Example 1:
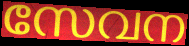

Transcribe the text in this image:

സേവന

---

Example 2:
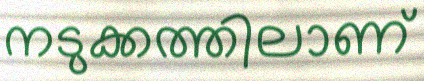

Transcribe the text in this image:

നടുക്കത്തിലാണ്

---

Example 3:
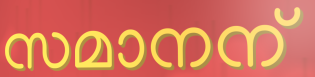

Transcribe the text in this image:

സമാനന്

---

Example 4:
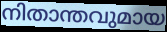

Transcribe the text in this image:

നിതാന്തവുമായ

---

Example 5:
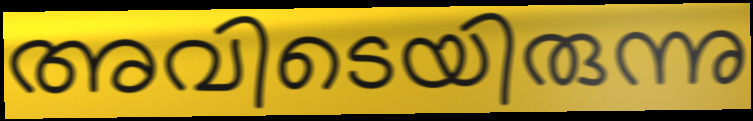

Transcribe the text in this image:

അവിടെയിരുന്നു